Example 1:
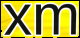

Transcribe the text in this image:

xm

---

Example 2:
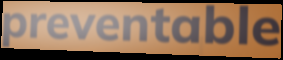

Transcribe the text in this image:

preventable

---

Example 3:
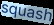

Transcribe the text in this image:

squash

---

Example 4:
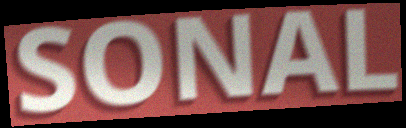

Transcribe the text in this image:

SONAL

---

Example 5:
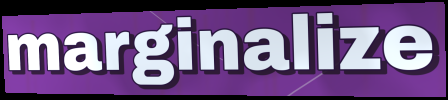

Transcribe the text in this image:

marginalize